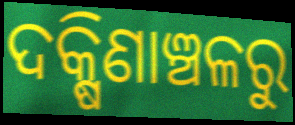
ଦକ୍ଷିଣାଞ୍ଚଳରୁ